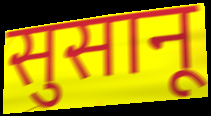
सुसानू